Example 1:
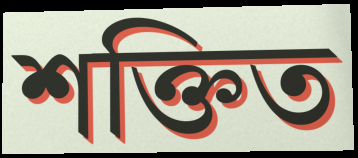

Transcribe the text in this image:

শক্তিত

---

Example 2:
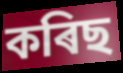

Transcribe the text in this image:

কৰিছ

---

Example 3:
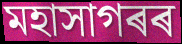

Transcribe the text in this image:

মহাসাগৰৰ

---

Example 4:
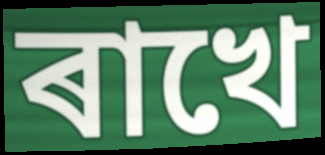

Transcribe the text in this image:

ৰাখে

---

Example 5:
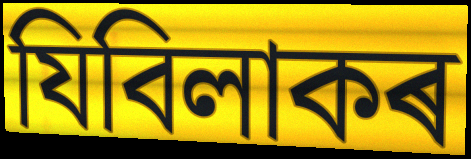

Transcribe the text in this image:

যিবিলাকৰ